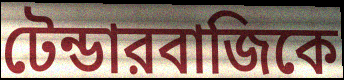
টেন্ডারবাজিকে